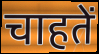
चाहतें